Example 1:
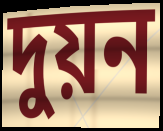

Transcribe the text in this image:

দুয়ন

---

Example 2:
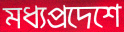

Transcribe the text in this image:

মধ্যপ্রদেশে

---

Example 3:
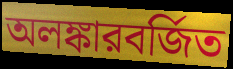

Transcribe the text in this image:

অলঙ্কারবর্জিত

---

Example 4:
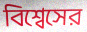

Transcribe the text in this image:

বিশ্বেসের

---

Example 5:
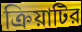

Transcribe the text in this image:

ক্রিয়াটির